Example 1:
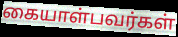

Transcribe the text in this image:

கையாள்பவர்கள்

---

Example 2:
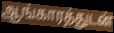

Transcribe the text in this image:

ஆங்காரத்துடன்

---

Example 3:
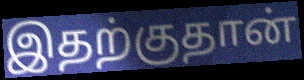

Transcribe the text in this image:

இதற்குதான்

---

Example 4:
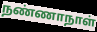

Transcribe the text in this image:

நண்ணாநாள்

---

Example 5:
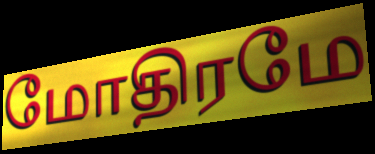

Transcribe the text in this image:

மோதிரமே